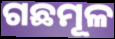
ଗଛମୂଳ